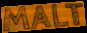
MALT